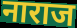
नाराज